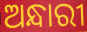
ଅନ୍ଧାରୀ